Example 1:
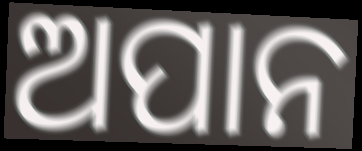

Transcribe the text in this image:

ଅପାନ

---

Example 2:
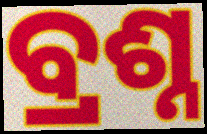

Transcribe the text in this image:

ବ୍ରଶ୍ନ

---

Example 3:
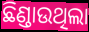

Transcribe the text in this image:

ଛିଣ୍ଡାଉଥିଲା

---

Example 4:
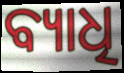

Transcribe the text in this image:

ବ୍ୟାଧି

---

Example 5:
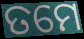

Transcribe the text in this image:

ତମେ